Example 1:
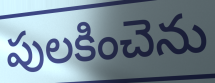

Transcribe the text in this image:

పులకించెను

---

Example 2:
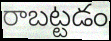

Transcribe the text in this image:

రాబట్టడం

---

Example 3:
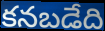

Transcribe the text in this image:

కనబడేది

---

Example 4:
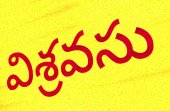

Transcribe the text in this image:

విశ్రవసు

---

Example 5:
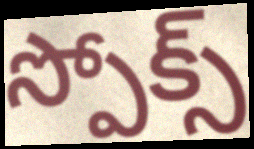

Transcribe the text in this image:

స్పోక్స్